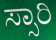
ಸ್ಸಾರಿ